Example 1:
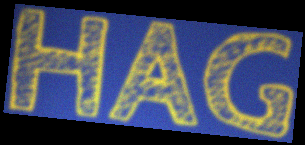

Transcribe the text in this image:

HAG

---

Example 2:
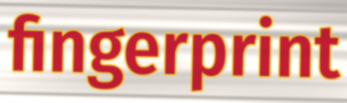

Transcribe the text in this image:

fingerprint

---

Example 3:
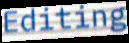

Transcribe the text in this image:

Editing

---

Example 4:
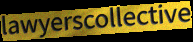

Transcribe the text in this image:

lawyerscollective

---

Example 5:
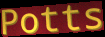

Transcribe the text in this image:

Potts